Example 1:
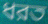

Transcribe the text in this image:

ধরত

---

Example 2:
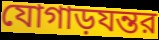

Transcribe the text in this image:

যোগাড়যন্তর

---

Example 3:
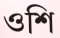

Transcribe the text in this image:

ওশি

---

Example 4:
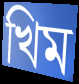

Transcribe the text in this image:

খিম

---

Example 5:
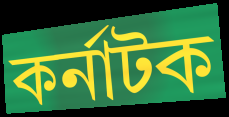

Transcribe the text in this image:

কর্নাটক